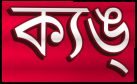
ক্যঙ্